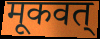
मूकवत्